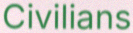
Civilians